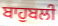
ਬਾਹੁਬਲੀ